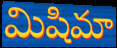
మిషిమా